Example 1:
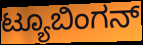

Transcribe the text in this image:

ಟ್ಯೂಬಿಂಗನ್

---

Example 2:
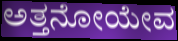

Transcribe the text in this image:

ಅತ್ತನೋಯೇವ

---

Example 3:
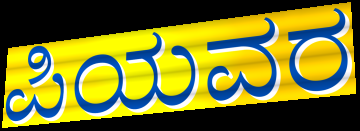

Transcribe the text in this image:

ಪಿಯವರ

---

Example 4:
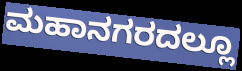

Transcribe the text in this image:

ಮಹಾನಗರದಲ್ಲೂ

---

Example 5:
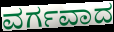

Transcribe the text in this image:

ವರ್ಗವಾದ